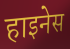
हाइनेस